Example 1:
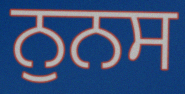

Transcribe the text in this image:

ਨੁਨਸ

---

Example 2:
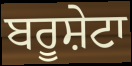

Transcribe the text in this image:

ਬਰੂਸ਼ੇਟਾ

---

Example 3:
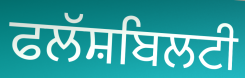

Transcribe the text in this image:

ਫਲੱਸ਼ਬਿਲਟੀ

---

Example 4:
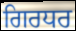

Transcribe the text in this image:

ਗਿਰਧਰ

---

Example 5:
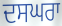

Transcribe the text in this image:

ਦਸਘਰਾ